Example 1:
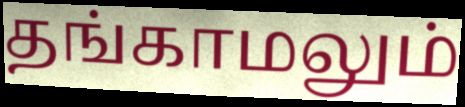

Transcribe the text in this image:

தங்காமலும்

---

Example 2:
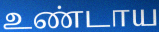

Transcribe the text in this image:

உண்டாய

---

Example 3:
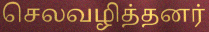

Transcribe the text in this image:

செலவழித்தனர்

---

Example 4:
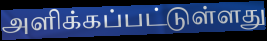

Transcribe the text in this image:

அளிக்கப்பட்டுள்ளது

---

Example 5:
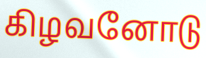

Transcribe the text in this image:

கிழவனோடு